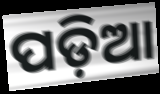
ପଡ଼ିଆ